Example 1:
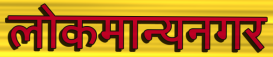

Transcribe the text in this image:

लोकमान्यनगर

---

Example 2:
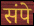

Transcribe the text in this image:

संपे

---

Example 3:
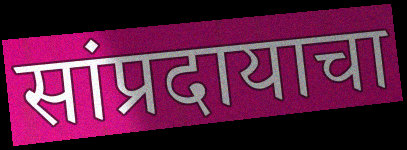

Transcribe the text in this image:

सांप्रदायाचा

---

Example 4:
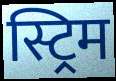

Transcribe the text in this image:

स्ट्रिम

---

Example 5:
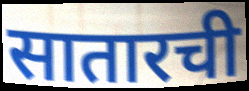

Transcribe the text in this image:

सातारची